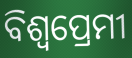
ବିଶ୍ବପ୍ରେମୀ